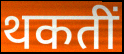
थकतीं